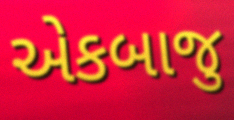
એકબાજુ